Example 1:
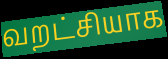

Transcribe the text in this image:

வறட்சியாக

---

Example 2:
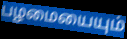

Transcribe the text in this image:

பழமையையும்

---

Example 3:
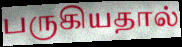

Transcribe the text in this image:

பருகியதால்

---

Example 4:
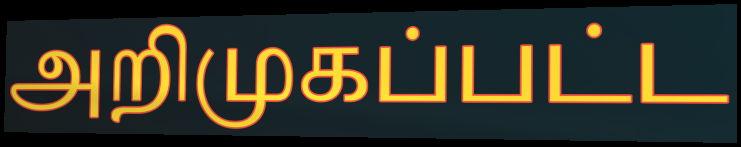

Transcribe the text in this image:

அறிமுகப்பட்ட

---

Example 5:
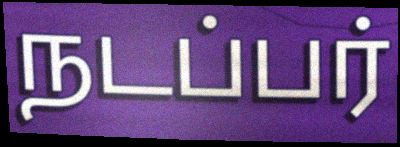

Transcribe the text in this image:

நடப்பர்